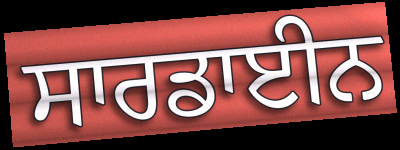
ਸਾਰਡਾਈਨ